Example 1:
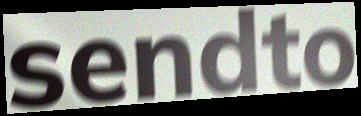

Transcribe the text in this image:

sendto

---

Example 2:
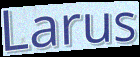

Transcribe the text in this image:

Larus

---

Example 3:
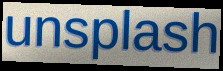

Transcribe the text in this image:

unsplash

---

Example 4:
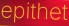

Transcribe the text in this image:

epithet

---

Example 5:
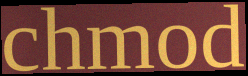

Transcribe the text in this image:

chmod